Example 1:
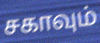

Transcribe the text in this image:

சகாவும்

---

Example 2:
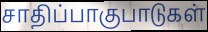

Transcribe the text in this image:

சாதிப்பாகுபாடுகள்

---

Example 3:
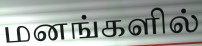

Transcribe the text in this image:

மனங்களில்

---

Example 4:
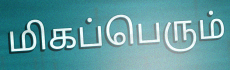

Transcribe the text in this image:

மிகப்பெரும்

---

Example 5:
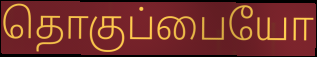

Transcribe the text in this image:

தொகுப்பையோ